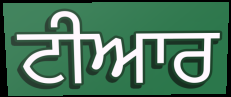
ਟੀਆਰ